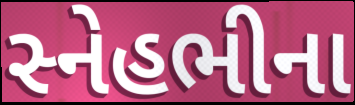
સ્નેહભીના